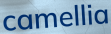
camellia